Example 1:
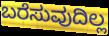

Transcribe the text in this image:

ಬರೆಸುವುದಿಲ್ಲ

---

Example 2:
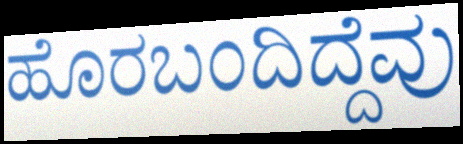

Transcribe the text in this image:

ಹೊರಬಂದಿದ್ದೆವು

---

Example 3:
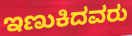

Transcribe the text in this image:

ಇಣುಕಿದವರು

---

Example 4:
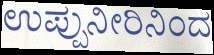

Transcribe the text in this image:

ಉಪ್ಪುನೀರಿನಿಂದ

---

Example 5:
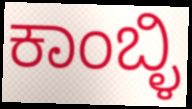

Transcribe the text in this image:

ಕಾಂಬ್ಳಿ